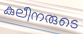
കുലീനരുടെ